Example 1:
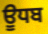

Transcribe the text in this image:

ਊਧਬ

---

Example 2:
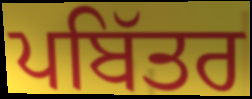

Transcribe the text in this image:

ਪਬਿੱਤਰ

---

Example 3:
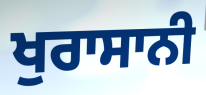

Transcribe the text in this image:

ਖੁਰਾਸਾਨੀ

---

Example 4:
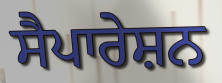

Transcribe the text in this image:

ਸੈਪਾਰੇਸ਼ਨ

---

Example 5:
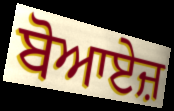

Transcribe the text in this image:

ਬੋਆਏਜ਼